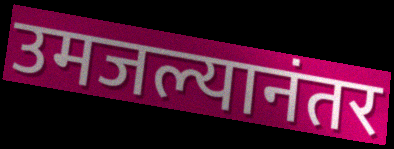
उमजल्यानंतर